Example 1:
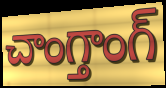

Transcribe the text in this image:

చాంగ్తాంగ్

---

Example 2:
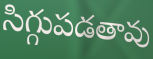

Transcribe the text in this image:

సిగ్గుపడతావు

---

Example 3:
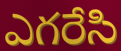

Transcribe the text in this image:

ఎగరేసి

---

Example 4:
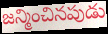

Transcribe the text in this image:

జన్మించినపుడు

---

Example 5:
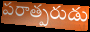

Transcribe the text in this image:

పరాత్పరుడు